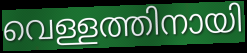
വെള്ളത്തിനായി